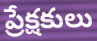
ప్రేక్షకులు